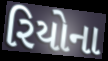
રિયોના